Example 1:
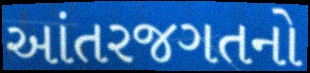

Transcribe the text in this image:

આંતરજગતનો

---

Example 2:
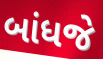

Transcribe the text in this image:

બાંધજે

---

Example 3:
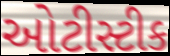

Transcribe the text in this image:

ઓટીસ્ટીક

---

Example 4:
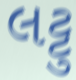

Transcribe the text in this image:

લટ્ટુ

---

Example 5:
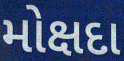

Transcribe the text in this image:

મોક્ષદા